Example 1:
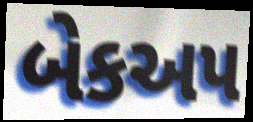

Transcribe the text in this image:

બેકઅપ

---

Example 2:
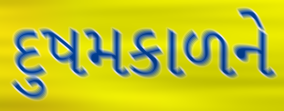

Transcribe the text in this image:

દુષમકાળને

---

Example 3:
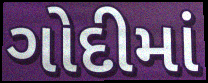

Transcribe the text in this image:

ગોદીમાં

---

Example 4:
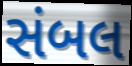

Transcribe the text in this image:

સંબલ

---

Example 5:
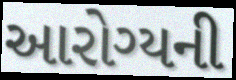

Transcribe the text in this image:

આરોગ્યની